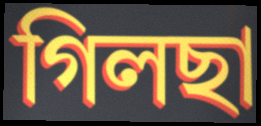
গিলছা